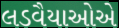
લડવૈયાઓએ